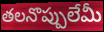
తలనొప్పులేమీ